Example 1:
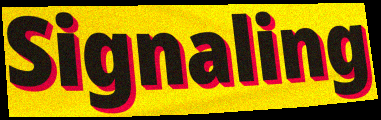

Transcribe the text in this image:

Signaling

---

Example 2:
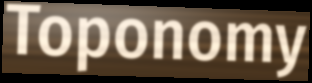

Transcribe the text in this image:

Toponomy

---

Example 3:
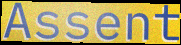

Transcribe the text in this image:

Assent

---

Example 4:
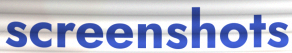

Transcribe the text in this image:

screenshots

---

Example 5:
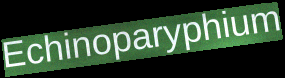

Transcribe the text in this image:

Echinoparyphium